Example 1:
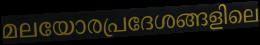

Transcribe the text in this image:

മലയോരപ്രദേശങ്ങളിലെ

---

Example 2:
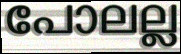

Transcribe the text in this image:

പോലല്ല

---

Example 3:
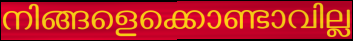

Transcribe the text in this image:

നിങ്ങളെക്കൊണ്ടാവില്ല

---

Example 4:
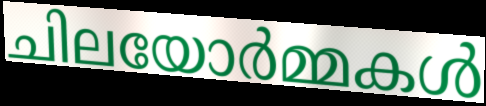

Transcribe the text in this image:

ചിലയോർമ്മകൾ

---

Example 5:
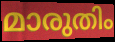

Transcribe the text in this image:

മാരുതിം